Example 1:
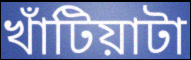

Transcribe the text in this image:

খাঁটিয়াটা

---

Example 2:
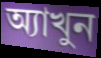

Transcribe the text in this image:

অ্যাখুন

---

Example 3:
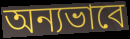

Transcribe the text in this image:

অন্যভাবে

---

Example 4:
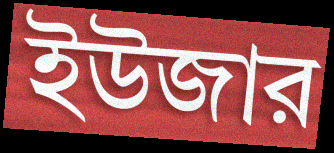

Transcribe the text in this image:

ইউজার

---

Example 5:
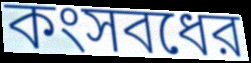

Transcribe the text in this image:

কংসবধের